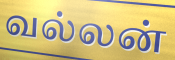
வல்லன்